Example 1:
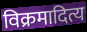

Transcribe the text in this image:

विक्रमादित्य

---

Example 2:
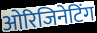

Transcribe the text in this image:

ओरिजिनेटिंग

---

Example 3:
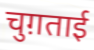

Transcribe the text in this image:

चुग़ताई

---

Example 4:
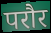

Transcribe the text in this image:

परौर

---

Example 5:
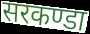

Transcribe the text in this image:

सरकण्डा